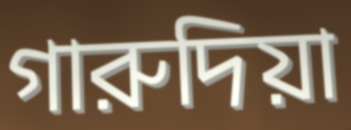
গারুদিয়া